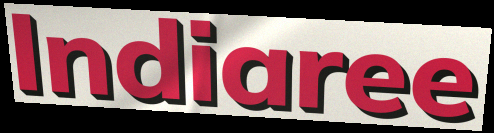
Indiaree